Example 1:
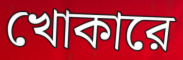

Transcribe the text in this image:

খোকারে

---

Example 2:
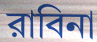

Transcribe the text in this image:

রাবিনা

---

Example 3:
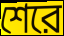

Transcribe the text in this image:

শেরে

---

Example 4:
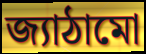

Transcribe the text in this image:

জ্যাঠামো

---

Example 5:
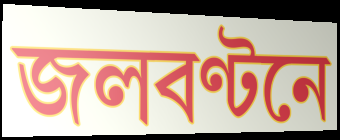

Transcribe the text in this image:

জলবণ্টনে